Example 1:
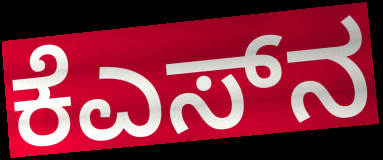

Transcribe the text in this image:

ಕೆಎಸ್‌ನ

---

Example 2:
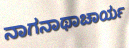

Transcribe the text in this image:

ನಾಗನಾಥಾಚಾರ್ಯ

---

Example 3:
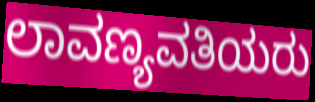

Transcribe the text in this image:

ಲಾವಣ್ಯವತಿಯರು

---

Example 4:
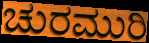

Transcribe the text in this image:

ಚುರಮುರಿ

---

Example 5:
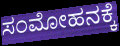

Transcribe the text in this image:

ಸಂಮೋಹನಕ್ಕೆ